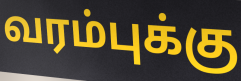
வரம்புக்கு